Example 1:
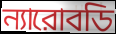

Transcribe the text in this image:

ন্যারোবডি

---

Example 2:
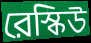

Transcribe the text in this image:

রেস্কিউ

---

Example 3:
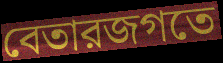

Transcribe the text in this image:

বেতারজগতে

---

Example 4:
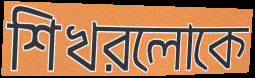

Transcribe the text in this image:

শিখরলোকে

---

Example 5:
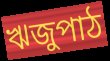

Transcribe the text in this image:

ঋজুপাঠ